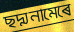
ছদ্মনামেৰে